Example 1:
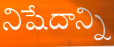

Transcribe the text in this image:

నిషేదాన్ని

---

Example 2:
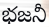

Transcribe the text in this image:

భజనీ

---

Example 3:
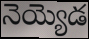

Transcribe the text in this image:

నెయ్యెడ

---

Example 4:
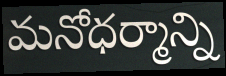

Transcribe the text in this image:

మనోధర్మాన్ని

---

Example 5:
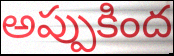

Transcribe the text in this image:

అప్పుకింద